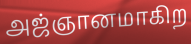
அஜ்ஞானமாகிற